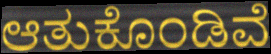
ಆತುಕೊಂಡಿವೆ